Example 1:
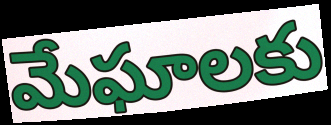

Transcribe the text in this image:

మేఘాలకు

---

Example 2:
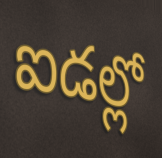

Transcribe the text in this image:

ఐడల్లో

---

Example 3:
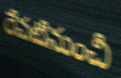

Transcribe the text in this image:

రేపటినుంచీ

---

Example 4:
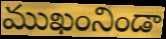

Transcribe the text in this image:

ముఖంనిండా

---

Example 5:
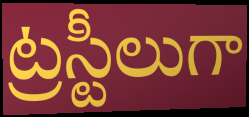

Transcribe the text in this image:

ట్రస్టీలుగా